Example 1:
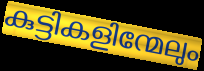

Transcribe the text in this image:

കുട്ടികളിന്മേലും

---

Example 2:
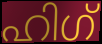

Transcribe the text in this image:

ഹിഗ്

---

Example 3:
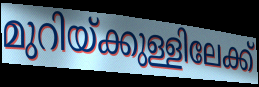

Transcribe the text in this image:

മുറിയ്ക്കുള്ളിലേക്ക്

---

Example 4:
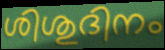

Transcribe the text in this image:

ശിശുദിനം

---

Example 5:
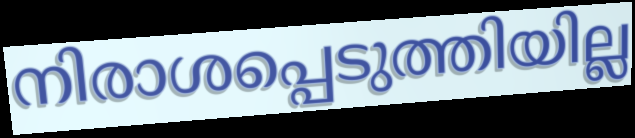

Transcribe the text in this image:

നിരാശപ്പെടുത്തിയില്ല